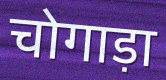
चोगाड़ा